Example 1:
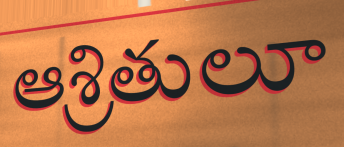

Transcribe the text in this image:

ఆశ్రితులూ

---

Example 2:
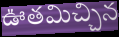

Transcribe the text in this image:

ఊతమిచ్చిన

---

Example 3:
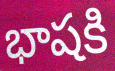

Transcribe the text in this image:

భాషకి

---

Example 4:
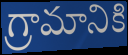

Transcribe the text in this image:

గ్రామానికి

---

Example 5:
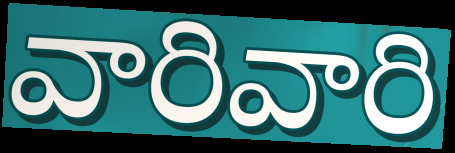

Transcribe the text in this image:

వారివారి